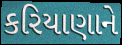
કરિયાણાને